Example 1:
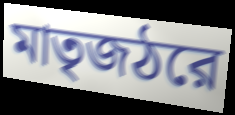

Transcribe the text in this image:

মাতৃজঠরে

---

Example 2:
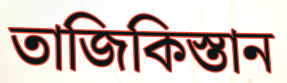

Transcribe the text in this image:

তাজিকিস্তান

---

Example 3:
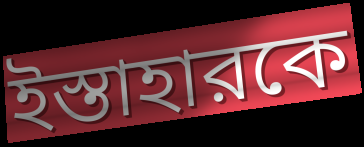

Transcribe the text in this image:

ইস্তাহারকে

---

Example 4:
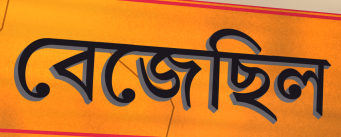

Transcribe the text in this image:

বেজেছিল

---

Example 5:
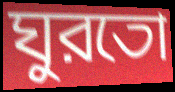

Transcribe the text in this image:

ঘুরতো